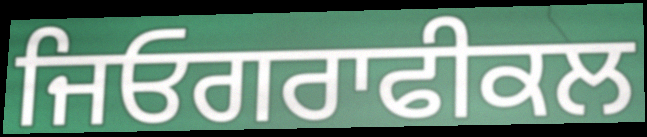
ਜਿਓਗਰਾਫੀਕਲ